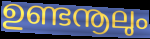
ഉണ്ടനൂലും